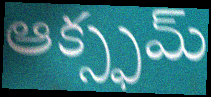
ఆక్స్ఫమ్